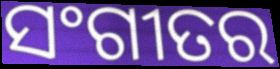
ସଂଗୀତର